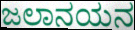
ಜಲಾನಯನ